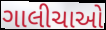
ગાલીચાઓ